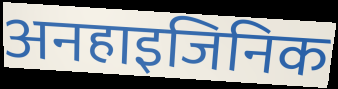
अनहाइजिनिक